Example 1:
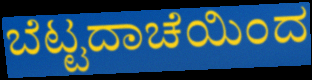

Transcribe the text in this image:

ಬೆಟ್ಟದಾಚೆಯಿಂದ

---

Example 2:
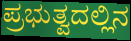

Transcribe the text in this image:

ಪ್ರಭುತ್ವದಲ್ಲಿನ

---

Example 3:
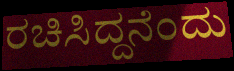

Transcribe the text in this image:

ರಚಿಸಿದ್ದನೆಂದು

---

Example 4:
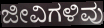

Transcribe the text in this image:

ಜೀವಿಗಳಿವು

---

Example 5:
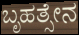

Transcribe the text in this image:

ಬೃಹತ್ಸೇನ